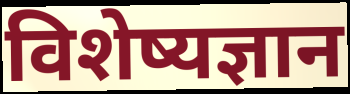
विशेष्यज्ञान